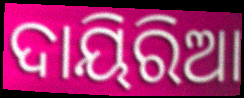
ଦାୟିରିଆ